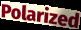
Polarized